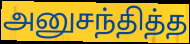
அனுசந்தித்த